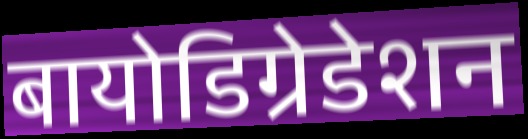
बायोडिग्रेडेशन